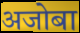
अजोबा